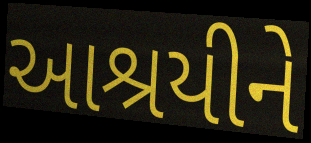
આશ્રયીને